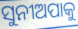
ସୁନୀଅପାକୁ